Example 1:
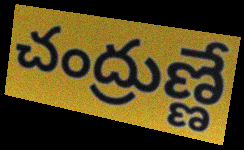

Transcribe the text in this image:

చంద్రుణ్ణే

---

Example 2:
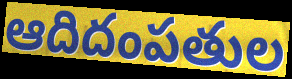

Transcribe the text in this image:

ఆదిదంపతుల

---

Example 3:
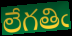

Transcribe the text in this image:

లేగతిఁ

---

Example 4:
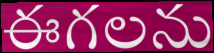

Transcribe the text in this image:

ఈగలను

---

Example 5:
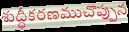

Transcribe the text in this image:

శుద్ధీకరణముచొప్పున